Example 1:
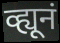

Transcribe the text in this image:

व्ह्यूनं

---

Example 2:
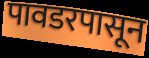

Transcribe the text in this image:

पावडरपासून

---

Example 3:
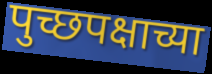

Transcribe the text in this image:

पुच्छपक्षाच्या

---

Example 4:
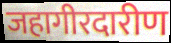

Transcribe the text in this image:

जहागीरदारीण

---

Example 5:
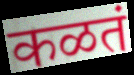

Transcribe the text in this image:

कळतं